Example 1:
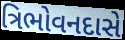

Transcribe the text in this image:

ત્રિભોવનદાસે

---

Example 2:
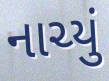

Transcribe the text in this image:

નાચ્યું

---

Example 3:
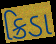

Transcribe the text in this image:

ક્રિડા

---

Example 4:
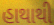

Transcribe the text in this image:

હાથાથી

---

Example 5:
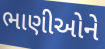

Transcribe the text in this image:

ભાણીઓને